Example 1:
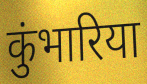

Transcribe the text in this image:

कुंभारिया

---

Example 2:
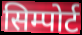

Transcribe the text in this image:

सिम्पोर्ट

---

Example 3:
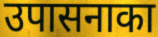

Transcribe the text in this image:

उपासनाका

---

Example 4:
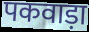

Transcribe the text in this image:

पकवाड़ा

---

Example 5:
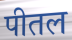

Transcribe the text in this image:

पीतल